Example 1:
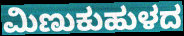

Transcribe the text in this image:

ಮಿಣುಕುಹುಳದ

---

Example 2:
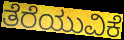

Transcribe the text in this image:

ತೆರೆಯುವಿಕೆ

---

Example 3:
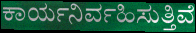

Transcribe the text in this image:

ಕಾರ್ಯನಿರ್ವಹಿಸುತ್ತಿವೆ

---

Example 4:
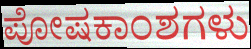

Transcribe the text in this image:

ಪೋಷಕಾಂಶಗಳು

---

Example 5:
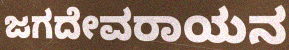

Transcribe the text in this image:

ಜಗದೇವರಾಯನ